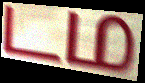
டம